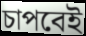
চাপবেই